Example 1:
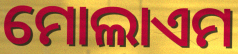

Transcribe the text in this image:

ମୋଲାଏମ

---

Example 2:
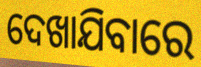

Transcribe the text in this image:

ଦେଖାଯିବାରେ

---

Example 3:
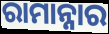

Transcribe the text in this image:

ରାମାନ୍ନାର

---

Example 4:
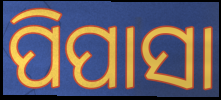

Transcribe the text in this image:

ପିପାସା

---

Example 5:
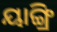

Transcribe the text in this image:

ୟାଙ୍ଗ୍ରି